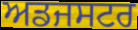
ਅਡਜਸਟਰ